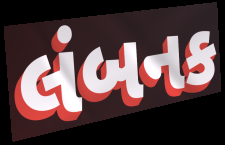
લંબનક